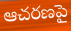
ఆచరణపై